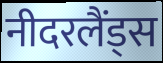
नीदरलैंड्स